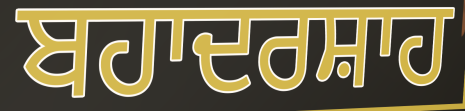
ਬਹਾਦਰਸ਼ਾਹ